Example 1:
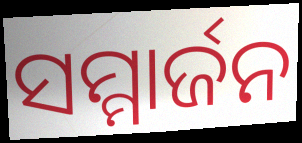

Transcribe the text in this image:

ସମ୍ମାର୍ଜନ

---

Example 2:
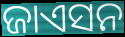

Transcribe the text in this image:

ଜାଏସନ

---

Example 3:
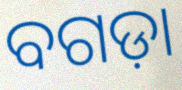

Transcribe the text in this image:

ବଗଡ଼ା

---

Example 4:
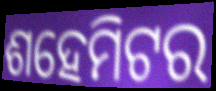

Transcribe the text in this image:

ଶହେମିଟର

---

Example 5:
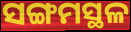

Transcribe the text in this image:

ସଙ୍ଗମସ୍ଥଳ